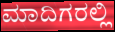
ಮಾದಿಗರಲ್ಲಿ